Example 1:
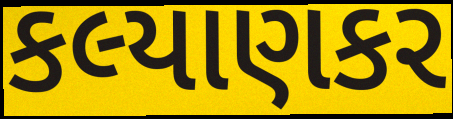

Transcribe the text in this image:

કલ્યાણકર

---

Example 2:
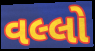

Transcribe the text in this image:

વલ્લો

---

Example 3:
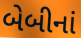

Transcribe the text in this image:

બેબીનાં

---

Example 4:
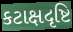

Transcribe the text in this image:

કટાક્ષદૃષ્ટિ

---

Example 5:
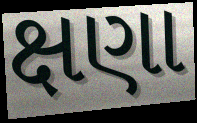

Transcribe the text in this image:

ક્ષણા